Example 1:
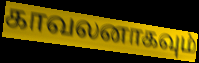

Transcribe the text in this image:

காவலனாகவும்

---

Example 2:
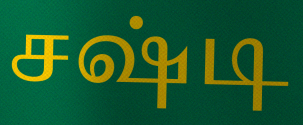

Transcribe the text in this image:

சஷ்டி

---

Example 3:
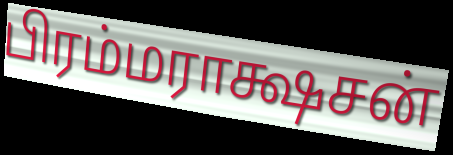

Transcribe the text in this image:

பிரம்மராக்ஷசன்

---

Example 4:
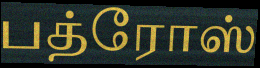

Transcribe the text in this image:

பத்ரோஸ்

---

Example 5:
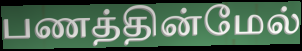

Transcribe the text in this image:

பணத்தின்மேல்